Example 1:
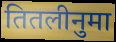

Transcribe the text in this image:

तितलीनुमा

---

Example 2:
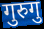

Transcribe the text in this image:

गुरुगु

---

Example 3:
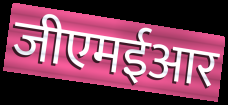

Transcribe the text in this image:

जीएमईआर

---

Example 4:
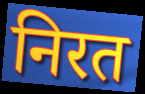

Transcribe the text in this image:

निरत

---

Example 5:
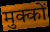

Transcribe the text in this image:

मुक्कों